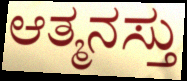
ಆತ್ಮನಸ್ತು